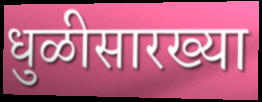
धुळीसारख्या